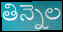
తిన్నెల